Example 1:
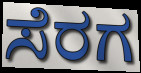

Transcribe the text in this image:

ಸೆರಗ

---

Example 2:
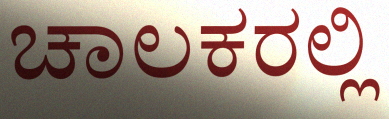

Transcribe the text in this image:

ಚಾಲಕರಲ್ಲಿ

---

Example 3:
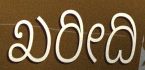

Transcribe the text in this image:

ಖರೀದಿ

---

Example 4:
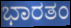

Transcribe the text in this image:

ಭಾರತಂ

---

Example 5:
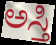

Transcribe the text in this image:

ಅಸ್ತಿ